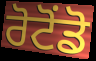
ਰੋਟੋਂਡੋ